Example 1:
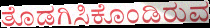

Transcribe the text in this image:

ತೊಡಗಿಸಿಕೊಂಡಿರುವ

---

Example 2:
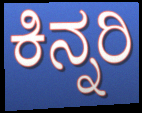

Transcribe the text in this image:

ಕಿನ್ನರಿ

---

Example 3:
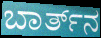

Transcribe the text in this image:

ಬಾರ್ತ್‌ನ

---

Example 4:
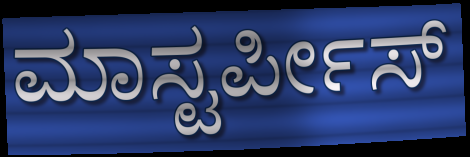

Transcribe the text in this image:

ಮಾಸ್ಟರ್ಪೀಸ್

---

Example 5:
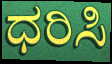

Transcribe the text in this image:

ಧರಿಸಿ